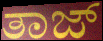
ತಾಜ್